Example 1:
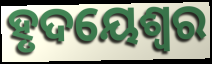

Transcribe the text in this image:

ହୃଦୟେଶ୍ୱର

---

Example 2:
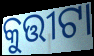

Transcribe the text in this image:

କୁତ୍ତୀଟା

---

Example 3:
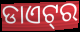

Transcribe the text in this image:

ଡାଏଟ୍‌ର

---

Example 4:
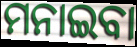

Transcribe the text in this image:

ମନାଇବା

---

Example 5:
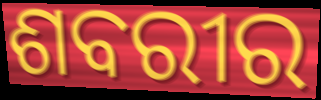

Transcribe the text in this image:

ଶବରୀର